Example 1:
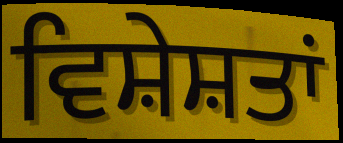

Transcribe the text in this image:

ਵਿਸ਼ੇਸ਼ਤਾਂ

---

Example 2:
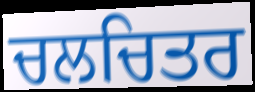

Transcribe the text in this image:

ਚਲਚਿਤਰ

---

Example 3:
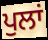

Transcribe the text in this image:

ਪੁਲਾਂ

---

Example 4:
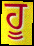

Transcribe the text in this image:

ਹੂ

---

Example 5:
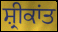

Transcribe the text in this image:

ਸ਼੍ਰੀਕਾਂਤ